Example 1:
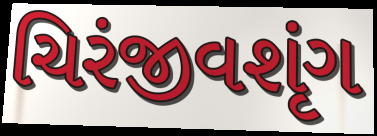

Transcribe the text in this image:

ચિરંજીવશૃંગ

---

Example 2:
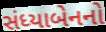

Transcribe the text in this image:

સંધ્યાબેનનો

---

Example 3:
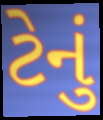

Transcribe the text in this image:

ટેનું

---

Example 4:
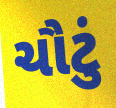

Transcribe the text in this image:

ચૌટું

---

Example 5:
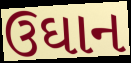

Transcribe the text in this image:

ઉઘાન